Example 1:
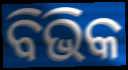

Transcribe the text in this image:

ବିଭିକ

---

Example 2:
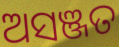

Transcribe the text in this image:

ଅସଞ୍ଜତ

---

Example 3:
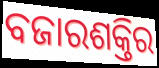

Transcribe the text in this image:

ବଜାରଶକ୍ତିର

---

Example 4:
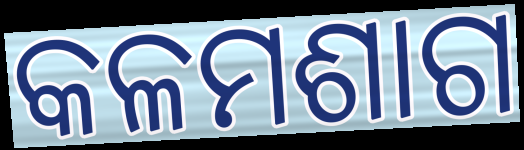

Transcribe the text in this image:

କଳମଶାଗ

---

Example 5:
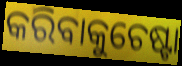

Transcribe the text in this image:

କରିବାକୁଚେଷ୍ଟା